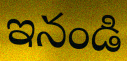
ఇనండి